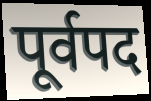
पूर्वपद